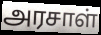
அரசாள்